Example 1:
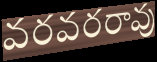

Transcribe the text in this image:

వరవరరావు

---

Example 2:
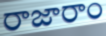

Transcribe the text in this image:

రాజారాం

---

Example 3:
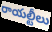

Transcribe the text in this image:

రాయల్టీలు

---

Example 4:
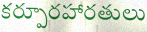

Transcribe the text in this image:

కర్పూరహారతులు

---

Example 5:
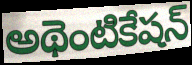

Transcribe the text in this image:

అథెంటికేషన్